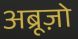
अब्रूज़ो